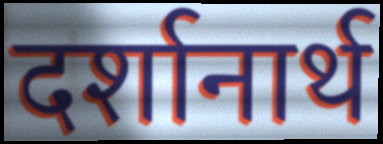
दर्शानार्थ